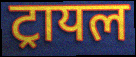
ट्रायल